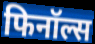
फिनॉल्स